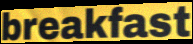
breakfast